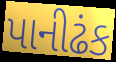
પાનીઢંક